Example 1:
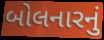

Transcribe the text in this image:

બોલનારનું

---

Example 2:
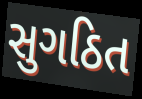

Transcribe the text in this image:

સુગઠિત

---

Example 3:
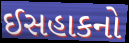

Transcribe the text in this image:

ઈસહાકનો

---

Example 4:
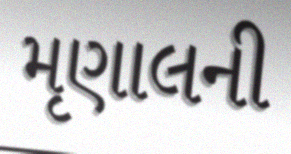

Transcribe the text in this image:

મૃણાલની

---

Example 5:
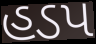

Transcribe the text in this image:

હડપ